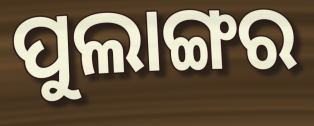
ପୁଲାଙ୍ଗର